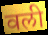
वली